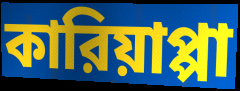
কারিয়াপ্পা